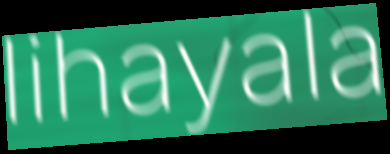
lihayala